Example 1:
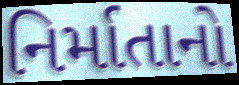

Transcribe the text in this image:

નિર્માતાનો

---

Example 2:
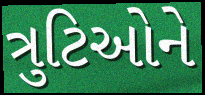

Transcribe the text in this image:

ત્રુટિઓને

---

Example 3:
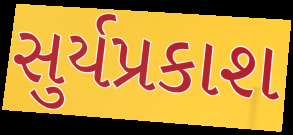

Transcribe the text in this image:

સુર્યપ્રકાશ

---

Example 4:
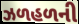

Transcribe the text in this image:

ઝળહળની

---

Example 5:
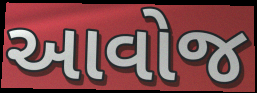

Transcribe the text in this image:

આવોજ